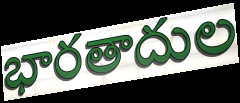
భారతాదుల